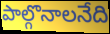
పాల్గొనాలనేది